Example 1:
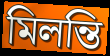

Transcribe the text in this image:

মিলন্তি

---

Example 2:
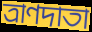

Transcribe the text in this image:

ত্রাণদাতা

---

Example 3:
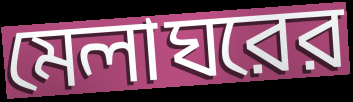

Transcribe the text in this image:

মেলাঘরের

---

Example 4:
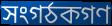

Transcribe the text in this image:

সংগঠকগণ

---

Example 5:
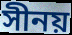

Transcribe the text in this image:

সীনয়